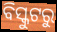
ବିସ୍କୁଟରୁ